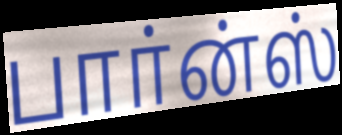
பார்ன்ஸ்